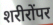
शरीरोंपर